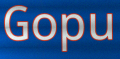
Gopu